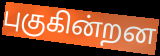
புகுகின்றன